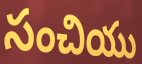
సంచియు